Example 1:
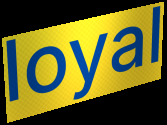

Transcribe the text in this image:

loyal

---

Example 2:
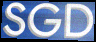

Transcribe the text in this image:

SGD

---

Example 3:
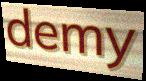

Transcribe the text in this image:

demy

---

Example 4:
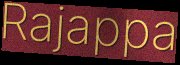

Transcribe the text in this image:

Rajappa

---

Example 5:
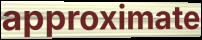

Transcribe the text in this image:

approximate